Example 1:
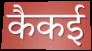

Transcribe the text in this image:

कैकई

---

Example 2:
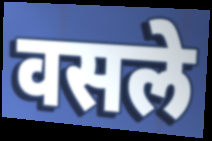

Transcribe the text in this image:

वसले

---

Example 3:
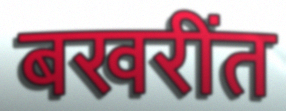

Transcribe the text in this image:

बखरींत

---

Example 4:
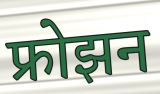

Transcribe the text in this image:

फ्रोझन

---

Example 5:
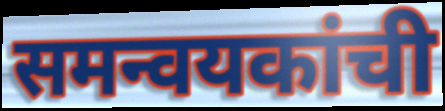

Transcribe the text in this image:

समन्वयकांची